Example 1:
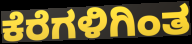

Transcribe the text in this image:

ಕೆರೆಗಳಿಗಿಂತ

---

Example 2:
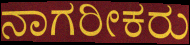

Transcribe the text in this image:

ನಾಗರೀಕರು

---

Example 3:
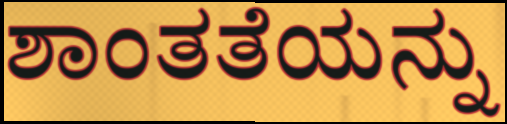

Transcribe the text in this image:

ಶಾಂತತೆಯನ್ನು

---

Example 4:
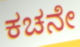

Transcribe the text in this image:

ಕಚನೇ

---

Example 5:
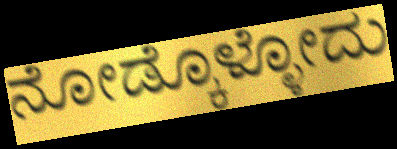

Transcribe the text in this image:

ನೋಡ್ಕೊಳ್ಳೋದು